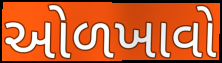
ઓળખાવો